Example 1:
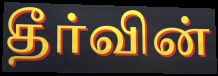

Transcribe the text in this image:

தீர்வின்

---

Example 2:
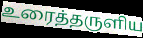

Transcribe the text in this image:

உரைத்தருளிய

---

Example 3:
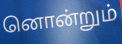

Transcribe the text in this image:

னொன்றும்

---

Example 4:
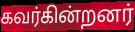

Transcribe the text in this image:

கவர்கின்றனர்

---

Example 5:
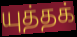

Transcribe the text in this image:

யுத்தக்